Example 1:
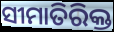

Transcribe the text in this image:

ସୀମାତିରିକ୍ତ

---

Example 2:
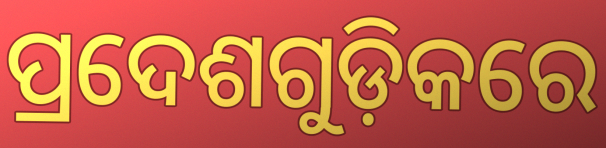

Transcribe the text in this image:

ପ୍ରଦେଶଗୁଡ଼ିକରେ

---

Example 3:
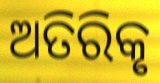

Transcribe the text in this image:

ଅତିରିକୃ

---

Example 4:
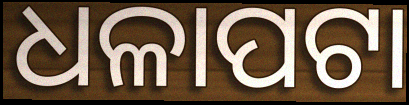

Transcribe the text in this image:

ଧଳାପଟା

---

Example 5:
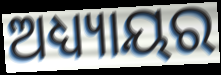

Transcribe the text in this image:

ଅଧ୍ୟ୍ୟାୟର